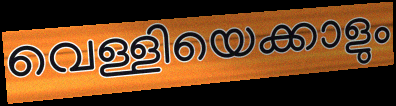
വെള്ളിയെക്കാളും